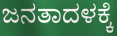
ಜನತಾದಳಕ್ಕೆ